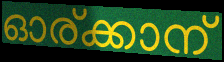
ഓര്ക്കാന്